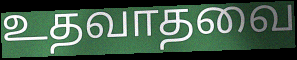
உதவாதவை